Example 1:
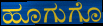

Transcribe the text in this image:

ಹೂಗುಗೊ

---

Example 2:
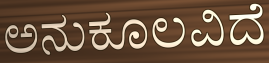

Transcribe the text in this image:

ಅನುಕೂಲವಿದೆ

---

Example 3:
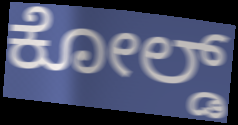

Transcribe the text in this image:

ಕೋಲ್ಡ್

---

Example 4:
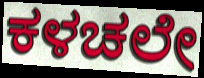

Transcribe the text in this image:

ಕಳಚಲೇ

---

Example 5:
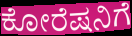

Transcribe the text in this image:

ಕೋರೆಷನಿಗೆ